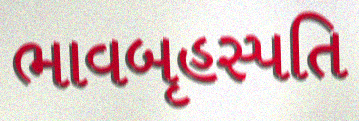
ભાવબૃહસ્પતિ